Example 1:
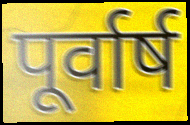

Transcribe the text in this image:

पूर्वार्ष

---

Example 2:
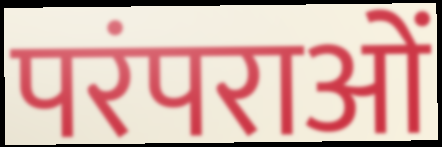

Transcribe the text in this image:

परंपराओं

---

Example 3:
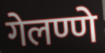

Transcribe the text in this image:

गेलण्णे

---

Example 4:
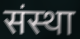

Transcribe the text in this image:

संस्था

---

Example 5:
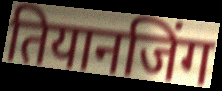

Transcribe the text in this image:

तियानजिंग